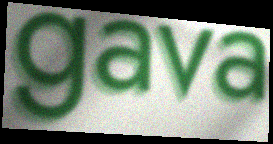
gava